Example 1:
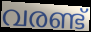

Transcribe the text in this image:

വരണ്ട്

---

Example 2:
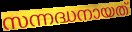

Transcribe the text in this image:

സന്നദ്ധനായത്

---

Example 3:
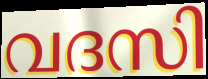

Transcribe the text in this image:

വദസി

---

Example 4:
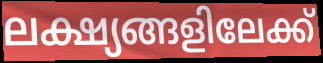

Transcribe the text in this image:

ലക്ഷ്യങ്ങളിലേക്ക്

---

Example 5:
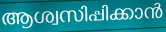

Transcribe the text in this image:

ആശ്വസിപ്പിക്കാൻ